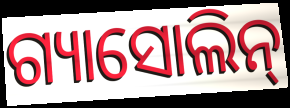
ଗ୍ୟାସୋଲିନ୍